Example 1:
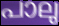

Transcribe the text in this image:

പാലു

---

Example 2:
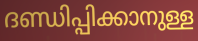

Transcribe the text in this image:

ദണ്ഡിപ്പിക്കാനുള്ള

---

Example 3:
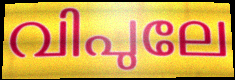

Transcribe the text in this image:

വിപുലേ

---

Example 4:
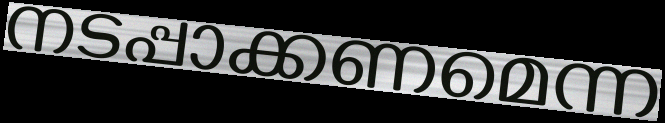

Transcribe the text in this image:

നടപ്പാക്കണമെന്ന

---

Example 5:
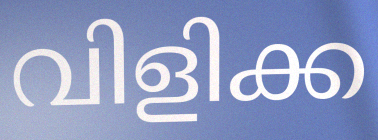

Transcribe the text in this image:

വിളിക്ക